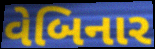
વેબિનાર